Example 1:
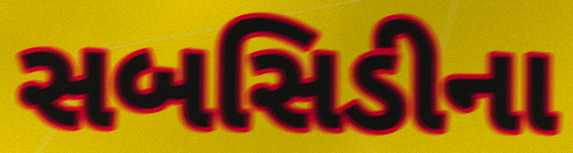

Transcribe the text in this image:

સબસિડીના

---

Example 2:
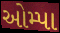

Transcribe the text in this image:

ઓમ્પા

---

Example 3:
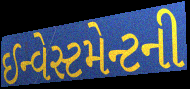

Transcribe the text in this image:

ઈન્વેસ્ટમેન્ટની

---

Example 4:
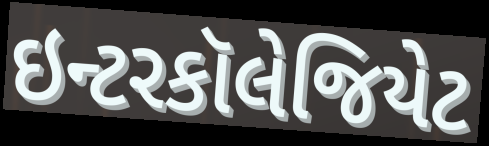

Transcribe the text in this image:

ઇન્ટરકૉલેજિયેટ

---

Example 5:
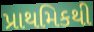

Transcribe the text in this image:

પ્રાથમિકથી